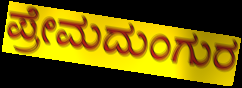
ಪ್ರೇಮದುಂಗುರ